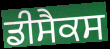
ਡੀਸੈਕਸ